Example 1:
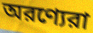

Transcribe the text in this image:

অরণ্যেরা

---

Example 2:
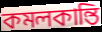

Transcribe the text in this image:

কমলকান্তি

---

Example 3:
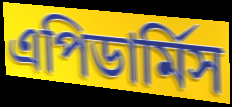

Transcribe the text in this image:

এপিডার্মিস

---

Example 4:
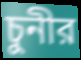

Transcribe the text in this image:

চুনীর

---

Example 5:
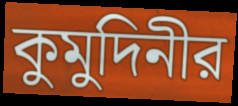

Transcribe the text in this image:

কুমুদিনীর